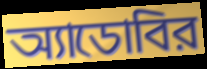
অ্যাডোবির